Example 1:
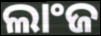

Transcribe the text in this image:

ଲାଂଜ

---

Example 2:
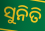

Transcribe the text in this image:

ସୁନିତି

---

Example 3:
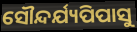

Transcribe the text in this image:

ସୌନ୍ଦର୍ଯ୍ୟପିପାସୁ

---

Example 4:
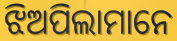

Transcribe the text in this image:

ଝିଅପିଲାମାନେ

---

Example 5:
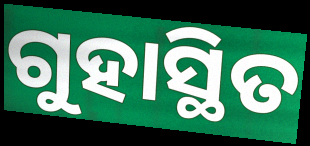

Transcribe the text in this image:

ଗୁହାସ୍ଥିତ